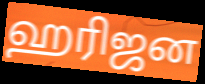
ஹரிஜன